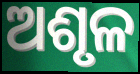
ଅଶୃଳ